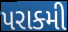
પરાક્મી